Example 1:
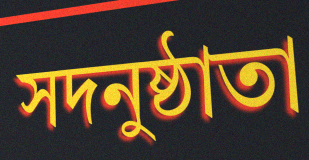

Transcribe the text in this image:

সদনুষ্ঠাতা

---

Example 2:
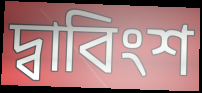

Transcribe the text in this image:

দ্বাবিংশ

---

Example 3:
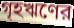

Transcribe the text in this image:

গৃহঋণের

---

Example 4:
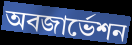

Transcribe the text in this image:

অবজার্ভেশন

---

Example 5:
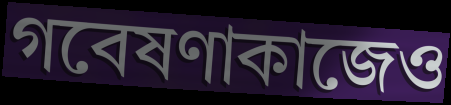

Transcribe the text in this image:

গবেষণাকাজেও